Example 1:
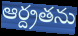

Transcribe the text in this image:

ఆర్ద్రతను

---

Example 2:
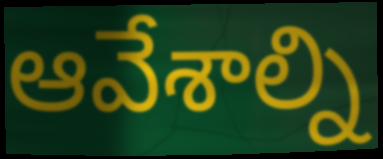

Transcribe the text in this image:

ఆవేశాల్ని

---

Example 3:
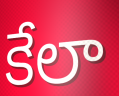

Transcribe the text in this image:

కేలా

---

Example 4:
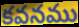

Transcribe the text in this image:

కవనము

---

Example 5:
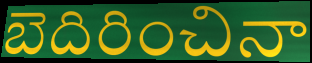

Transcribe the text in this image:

బెదిరించినా